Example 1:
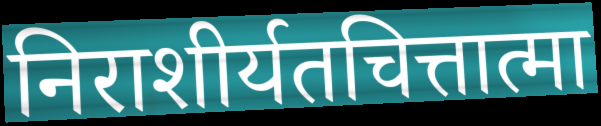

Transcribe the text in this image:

निराशीर्यतचित्तात्मा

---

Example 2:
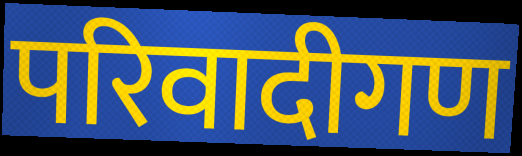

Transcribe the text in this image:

परिवादीगण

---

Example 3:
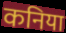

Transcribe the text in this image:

कनिया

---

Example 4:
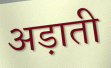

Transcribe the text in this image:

अड़ाती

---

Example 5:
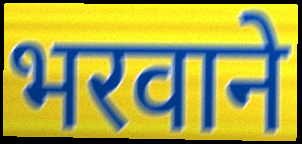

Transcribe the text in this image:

भरवाने